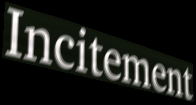
Incitement